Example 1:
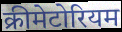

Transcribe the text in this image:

क्रीमेटोरियम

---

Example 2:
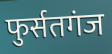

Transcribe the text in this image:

फुर्सतगंज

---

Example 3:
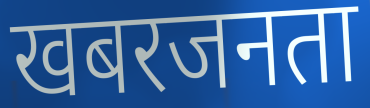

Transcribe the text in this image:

खबरजनता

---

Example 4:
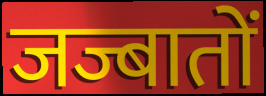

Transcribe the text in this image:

जज्बातों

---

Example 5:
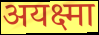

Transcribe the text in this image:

अयक्ष्मा